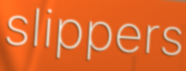
slippers